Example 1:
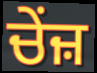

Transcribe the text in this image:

ਚੇਂਜ਼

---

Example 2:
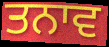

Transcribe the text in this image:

ਤਨਾਵ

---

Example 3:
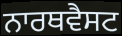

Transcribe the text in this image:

ਨਾਰਥਵੈਸਟ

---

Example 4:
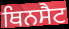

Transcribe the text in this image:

ਥਿਨਸੈਟ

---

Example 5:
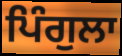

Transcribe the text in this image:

ਪਿੰਗੁਲਾ